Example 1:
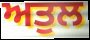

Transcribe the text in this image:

ਅਤੁਲ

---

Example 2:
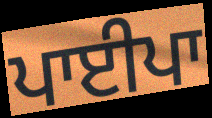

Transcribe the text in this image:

ਪਾਈਪਾ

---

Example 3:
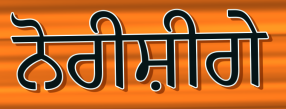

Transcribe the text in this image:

ਨੋਰੀਸ਼ੀਗੇ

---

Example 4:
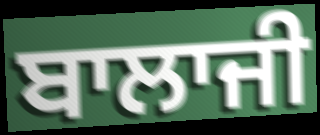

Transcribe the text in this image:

ਬਾਲਾਜੀ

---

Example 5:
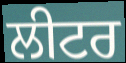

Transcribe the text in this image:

ਲੀਟਰ